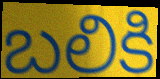
బలికి